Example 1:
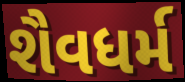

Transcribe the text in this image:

શૈવધર્મ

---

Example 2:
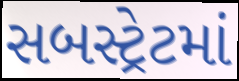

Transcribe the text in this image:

સબસ્ટ્રેટમાં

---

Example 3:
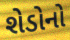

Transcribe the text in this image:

શેડોનો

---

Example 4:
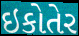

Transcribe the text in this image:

ઇકોતેર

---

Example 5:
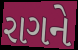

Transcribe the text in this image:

રાગને